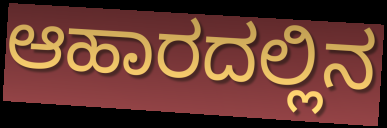
ಆಹಾರದಲ್ಲಿನ